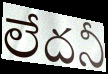
లేదనీ